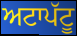
ਅਟਾਪੱਟੂ